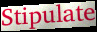
Stipulate